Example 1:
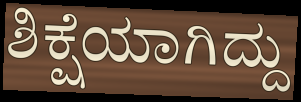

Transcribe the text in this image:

ಶಿಕ್ಷೆಯಾಗಿದ್ದು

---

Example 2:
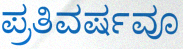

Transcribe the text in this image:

ಪ್ರತಿವರ್ಷವೂ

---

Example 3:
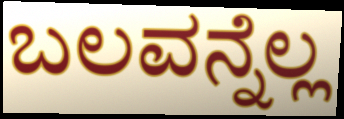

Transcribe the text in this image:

ಬಲವನ್ನೆಲ್ಲ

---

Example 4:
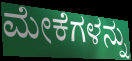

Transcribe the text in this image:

ಮೇಕೆಗಳನ್ನು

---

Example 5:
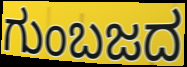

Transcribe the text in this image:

ಗುಂಬಜದ